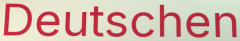
Deutschen